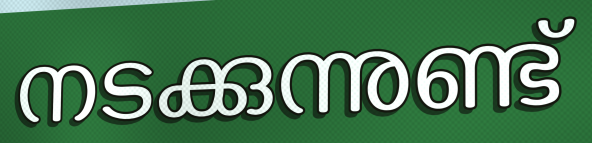
നടക്കുന്നുണ്ട്